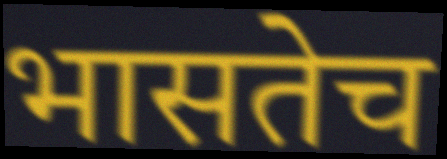
भासतेच